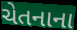
ચેતનાના